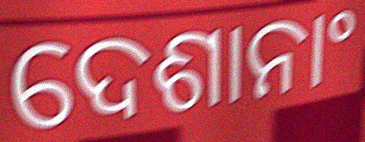
ଦେଶାନାଂ